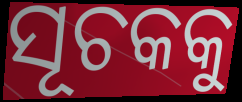
ସୂଚକକୁ